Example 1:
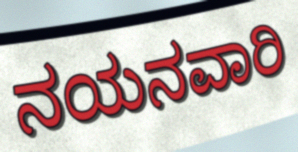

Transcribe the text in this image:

ನಯನವಾರಿ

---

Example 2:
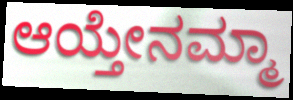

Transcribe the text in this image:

ಆಯ್ತೇನಮ್ಮಾ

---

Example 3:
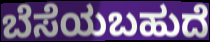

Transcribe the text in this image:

ಬೆಸೆಯಬಹುದೆ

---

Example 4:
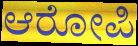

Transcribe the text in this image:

ಆರೋಪಿ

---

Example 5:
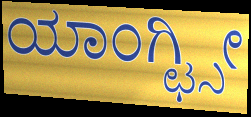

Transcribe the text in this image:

ಯಾಂಗ್ಟ್ಸೀ